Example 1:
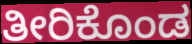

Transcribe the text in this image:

ತೀರಿಕೊಂಡ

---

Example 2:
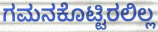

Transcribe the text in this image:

ಗಮನಕೊಟ್ಟಿರಲಿಲ್ಲ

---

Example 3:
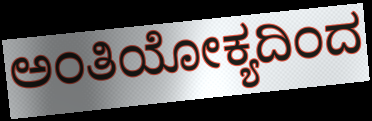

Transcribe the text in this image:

ಅಂತಿಯೋಕ್ಯದಿಂದ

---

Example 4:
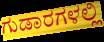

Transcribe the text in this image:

ಗುಡಾರಗಳಲ್ಲಿ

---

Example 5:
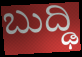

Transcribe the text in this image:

ಬುದ್ಢಿ